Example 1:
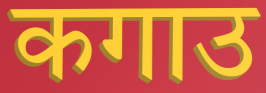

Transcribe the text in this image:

कगाउ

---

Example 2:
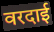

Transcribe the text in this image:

वरदाई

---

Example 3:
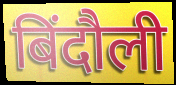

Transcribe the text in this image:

बिंदौली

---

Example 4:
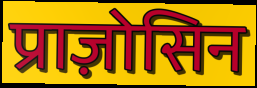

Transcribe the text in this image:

प्राज़ोसिन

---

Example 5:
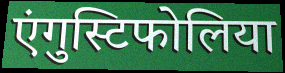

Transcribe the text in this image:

एंगुस्टिफोलिया